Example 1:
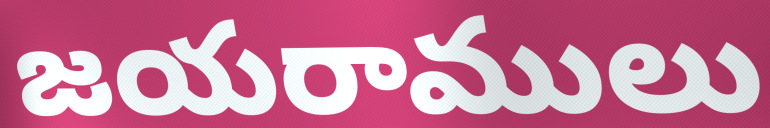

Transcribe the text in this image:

జయరాములు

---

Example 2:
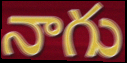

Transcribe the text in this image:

నాగు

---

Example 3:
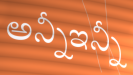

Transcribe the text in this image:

అన్నీఇన్నీ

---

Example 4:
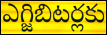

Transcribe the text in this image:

ఎగ్జిబిటర్లకు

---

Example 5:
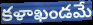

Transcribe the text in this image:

కళాఖండమే